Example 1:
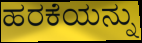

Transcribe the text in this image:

ಹರಕೆಯನ್ನು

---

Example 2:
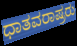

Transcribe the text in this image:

ಧಾತವರಾಷ್ರರು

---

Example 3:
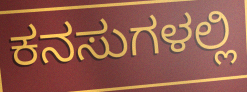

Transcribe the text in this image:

ಕನಸುಗಳಲ್ಲಿ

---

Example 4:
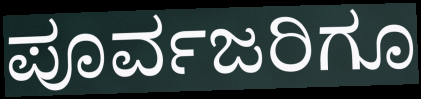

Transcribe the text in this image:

ಪೂರ್ವಜರಿಗೂ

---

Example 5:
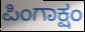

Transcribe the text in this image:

ಪಿಂಗಾಕ್ಷಂ